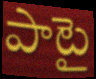
పాటై